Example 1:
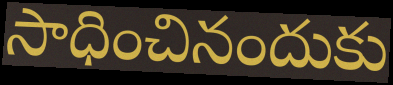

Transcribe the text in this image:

సాధించినందుకు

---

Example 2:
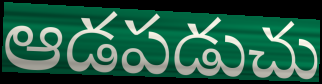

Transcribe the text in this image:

ఆడపడుచు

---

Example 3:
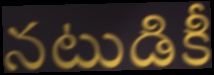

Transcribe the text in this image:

నటుడికీ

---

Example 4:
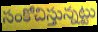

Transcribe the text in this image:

సంకోచిస్తున్నట్టు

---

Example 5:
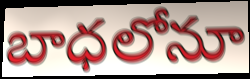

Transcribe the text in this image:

బాధలోనూ